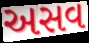
અસવ